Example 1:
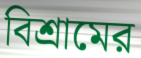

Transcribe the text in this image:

বিশ্রামের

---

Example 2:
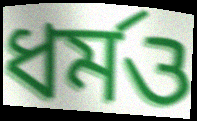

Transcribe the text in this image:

ধর্মও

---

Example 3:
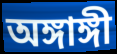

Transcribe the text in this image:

অঙ্গাঙ্গী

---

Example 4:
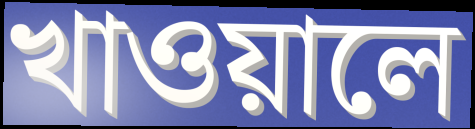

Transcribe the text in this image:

খাওয়ালে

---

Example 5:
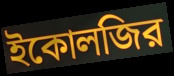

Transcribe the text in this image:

ইকোলজির